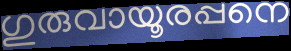
ഗുരുവായൂരപ്പനെ